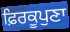
ਫ਼ਿਰਕੂਪੁਣਾ